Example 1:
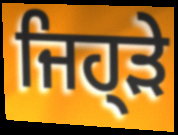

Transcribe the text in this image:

ਜਿਹ੍ੜੇ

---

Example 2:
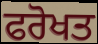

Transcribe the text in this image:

ਫਰੋਖਤ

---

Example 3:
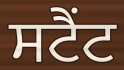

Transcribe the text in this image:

ਸਟੈਂਟ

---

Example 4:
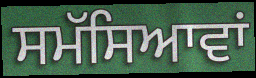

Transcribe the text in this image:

ਸਮੱਸਿਆਵਾਂ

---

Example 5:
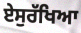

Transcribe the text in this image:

ਏਸੁਰੱਖਿਆ